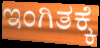
ಇಂಗಿತಕ್ಕೆ